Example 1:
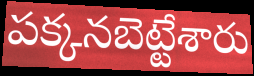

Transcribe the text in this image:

పక్కనబెట్టేశారు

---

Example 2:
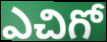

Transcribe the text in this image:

ఎచిగో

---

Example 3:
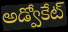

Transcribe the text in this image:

అడ్వోకేట్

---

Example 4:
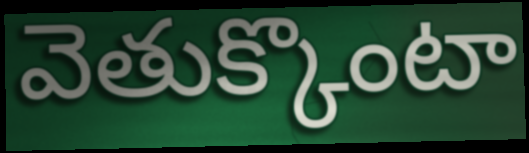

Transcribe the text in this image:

వెతుక్కొంటా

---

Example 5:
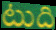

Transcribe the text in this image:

టుది